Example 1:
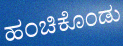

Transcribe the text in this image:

ಹಂಚಿಕೊಂಡು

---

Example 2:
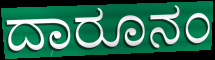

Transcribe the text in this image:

ದಾರೂನಂ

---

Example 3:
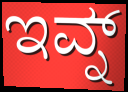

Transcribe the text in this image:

ಇವ್ನ್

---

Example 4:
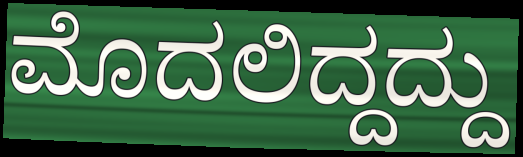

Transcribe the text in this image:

ಮೊದಲಿದ್ದದ್ದು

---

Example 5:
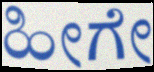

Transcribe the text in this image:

ಹೀಗೇ